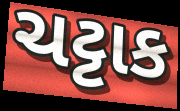
ચટ્ટાક